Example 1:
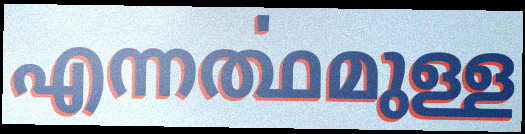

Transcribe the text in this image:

എന്നൎത്ഥമുള്ള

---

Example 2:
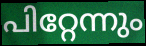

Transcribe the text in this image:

പിറ്റേന്നും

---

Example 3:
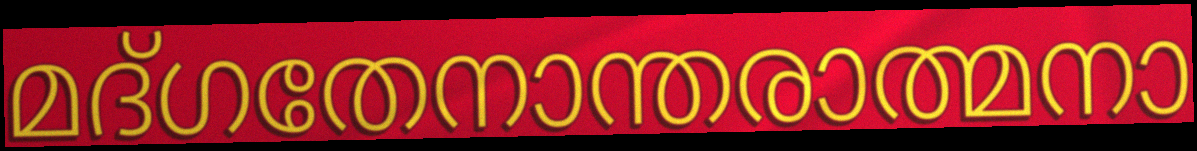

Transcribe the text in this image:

മദ്ഗതേനാന്തരാത്മനാ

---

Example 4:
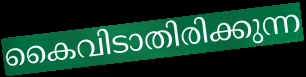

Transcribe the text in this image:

കൈവിടാതിരിക്കുന്ന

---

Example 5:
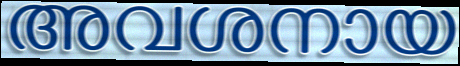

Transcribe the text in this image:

അവശനായ